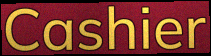
Cashier